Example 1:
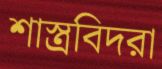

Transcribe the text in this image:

শাস্ত্রবিদরা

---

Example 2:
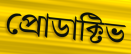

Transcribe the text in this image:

প্রোডাক্টিভ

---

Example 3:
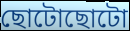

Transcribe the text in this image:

ছোটোছোটো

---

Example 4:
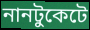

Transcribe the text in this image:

নানটুকেটে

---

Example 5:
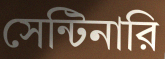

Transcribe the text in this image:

সেন্টিনারি